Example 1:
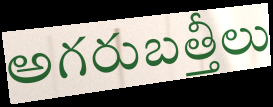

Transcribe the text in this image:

అగరుబత్తీలు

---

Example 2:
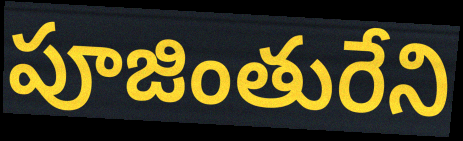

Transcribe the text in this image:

పూజింతురేని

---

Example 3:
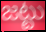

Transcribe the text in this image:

జట్టు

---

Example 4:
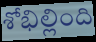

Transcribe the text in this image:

శోభిల్లింది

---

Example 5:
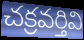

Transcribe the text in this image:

చక్రవర్తివి